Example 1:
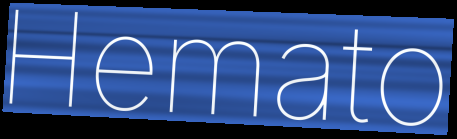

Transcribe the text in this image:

Hemato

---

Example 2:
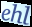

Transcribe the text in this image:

ehl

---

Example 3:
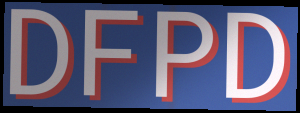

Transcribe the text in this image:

DFPD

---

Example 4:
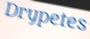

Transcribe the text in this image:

Drypetes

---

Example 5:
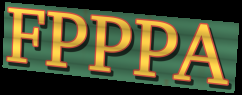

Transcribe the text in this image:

FPPPA